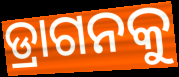
ଡ୍ରାଗନକୁ